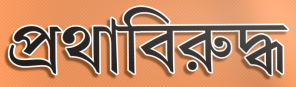
প্রথাবিরুদ্ধ